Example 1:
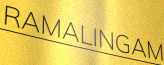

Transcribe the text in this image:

RAMALINGAM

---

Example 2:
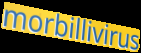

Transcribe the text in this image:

morbillivirus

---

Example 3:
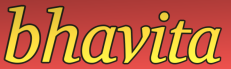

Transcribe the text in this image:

bhavita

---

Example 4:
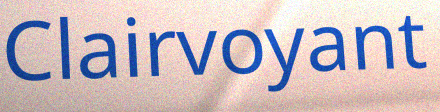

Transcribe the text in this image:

Clairvoyant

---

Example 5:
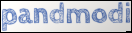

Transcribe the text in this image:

pandmodi